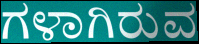
ಗಳಾಗಿರುವ